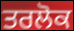
ਤਰਲੋਕ